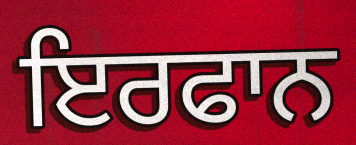
ਇਰਫਾਨ